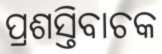
ପ୍ରଶସ୍ତିବାଚକ